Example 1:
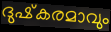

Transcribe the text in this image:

ദുഷ്‌കരമാവും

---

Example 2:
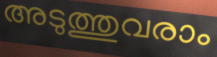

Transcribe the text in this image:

അടുത്തുവരാം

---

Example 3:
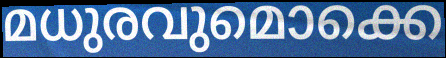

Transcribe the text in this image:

മധുരവുമൊക്കെ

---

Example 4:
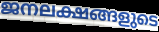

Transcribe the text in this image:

ജനലക്ഷങ്ങളുടെ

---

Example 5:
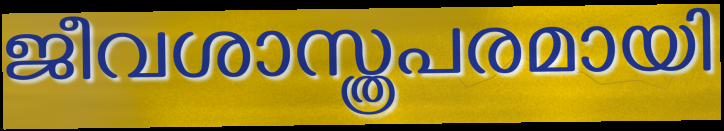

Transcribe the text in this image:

ജീവശാസ്ത്രപരമായി